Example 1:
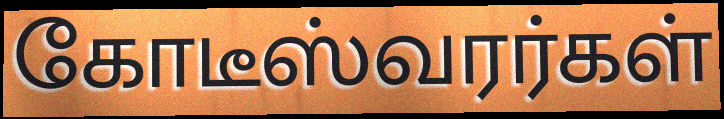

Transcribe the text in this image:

கோடீஸ்வரர்கள்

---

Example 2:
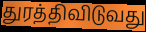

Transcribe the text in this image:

துரத்திவிடுவது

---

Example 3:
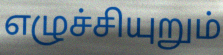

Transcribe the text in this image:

எழுச்சியுறும்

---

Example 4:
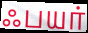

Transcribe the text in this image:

ஃபயர்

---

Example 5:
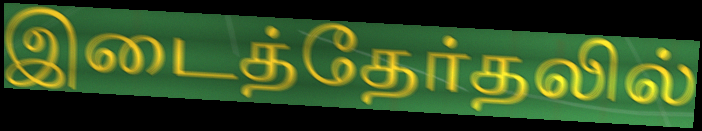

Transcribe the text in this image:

இடைத்தேர்தலில்